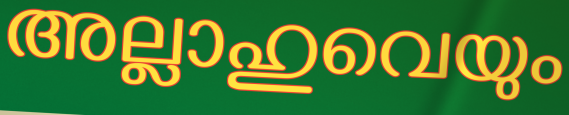
അല്ലാഹുവെയും